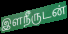
இளநீருடன்